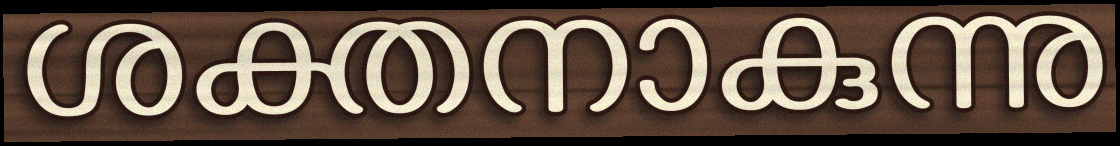
ശക്തനാകുന്നു